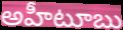
అహీటూబు